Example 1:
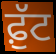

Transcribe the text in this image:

ਫ਼ੁੱਟ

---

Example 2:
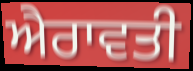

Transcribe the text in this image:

ਐਰਾਵਤੀ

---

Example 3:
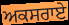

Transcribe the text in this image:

ਅਕਸਰਾਏ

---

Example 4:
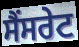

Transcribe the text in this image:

ਸੈਂਸਰੇਟ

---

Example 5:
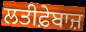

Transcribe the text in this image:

ਲਤੀਫ਼ੇਬਾਜ਼